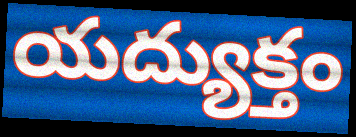
యద్యుక్తం